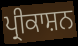
ਪ੍ਰੀਕਾਸ਼ਨ